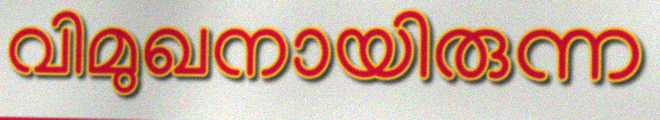
വിമുഖനായിരുന്ന